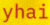
yhai